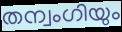
തന്വംഗിയും